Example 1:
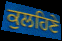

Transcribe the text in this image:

ਕੁਲਹਿਣੇ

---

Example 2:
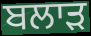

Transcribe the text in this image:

ਬਲਾੜ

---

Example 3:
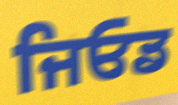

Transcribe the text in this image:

ਜਿਓਡ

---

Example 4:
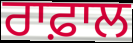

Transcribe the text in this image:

ਰਾਫ਼ਾਲ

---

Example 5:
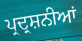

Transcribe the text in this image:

ਪ੍ਰਦ੍ਰਸ਼ਨੀਆਂ